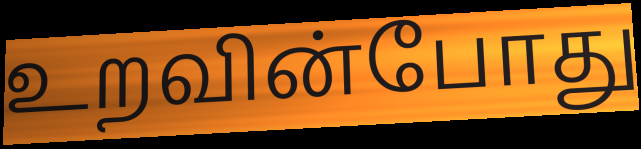
உறவின்போது